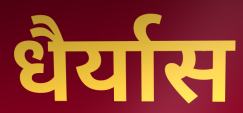
धैर्यास